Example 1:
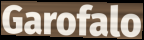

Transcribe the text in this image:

Garofalo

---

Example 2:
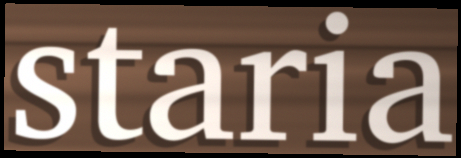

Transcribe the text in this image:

staria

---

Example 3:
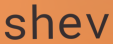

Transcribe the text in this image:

shev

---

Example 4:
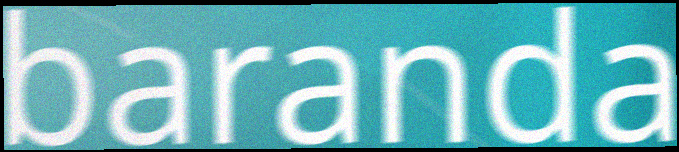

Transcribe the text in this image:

baranda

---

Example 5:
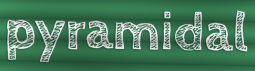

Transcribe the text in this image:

pyramidal